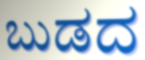
ಬುಡದ